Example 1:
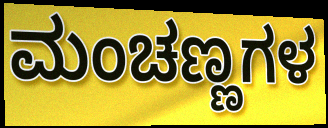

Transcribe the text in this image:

ಮಂಚಣ್ಣಗಳ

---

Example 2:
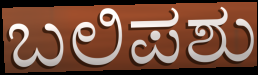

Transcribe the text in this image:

ಬಲಿಪಶು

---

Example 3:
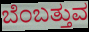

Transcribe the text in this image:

ಬೆಂಬತ್ತುವ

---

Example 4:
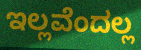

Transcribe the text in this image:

ಇಲ್ಲವೆಂದಲ್ಲ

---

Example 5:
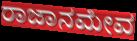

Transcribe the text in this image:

ರಾಜಾನಮೇವ